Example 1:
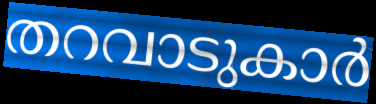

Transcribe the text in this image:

തറവാടുകാർ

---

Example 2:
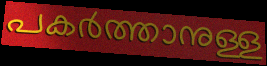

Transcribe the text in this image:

പകർത്താനുള്ള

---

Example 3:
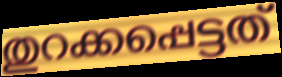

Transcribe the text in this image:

തുറക്കപ്പെട്ടത്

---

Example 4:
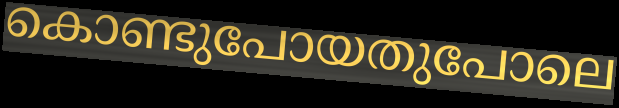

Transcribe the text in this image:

കൊണ്ടുപോയതുപോലെ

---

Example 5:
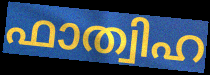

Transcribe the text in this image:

ഫാത്വിഹ